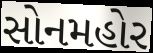
સોનમહોર